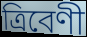
ত্রিবেণী